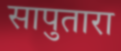
सापुतारा